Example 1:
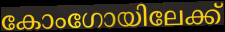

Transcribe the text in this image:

കോംഗോയിലേക്ക്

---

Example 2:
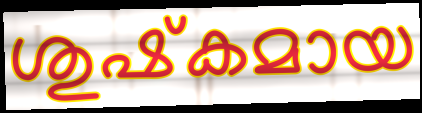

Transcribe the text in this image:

ശുഷ്‌കമായ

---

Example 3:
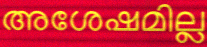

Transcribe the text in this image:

അശേഷമില്ല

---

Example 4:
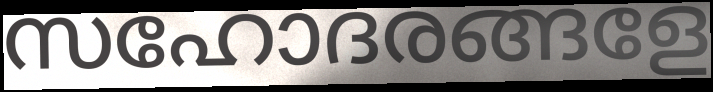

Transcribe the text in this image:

സഹോദരങ്ങളേ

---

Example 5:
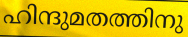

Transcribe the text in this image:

ഹിന്ദുമതത്തിനു